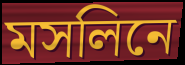
মসলিনে